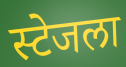
स्टेजला